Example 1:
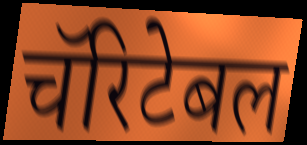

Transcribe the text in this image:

चॅरिटेबल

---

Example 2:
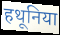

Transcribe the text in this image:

हथूनिया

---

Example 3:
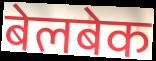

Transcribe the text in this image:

बेलबेक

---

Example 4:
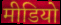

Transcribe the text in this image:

मीडियो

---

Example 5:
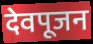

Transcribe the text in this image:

देवपूजन